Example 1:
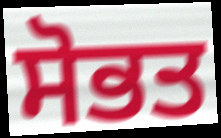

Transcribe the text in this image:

ਸੋਭਤ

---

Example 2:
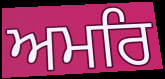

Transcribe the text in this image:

ਅਮਰਿ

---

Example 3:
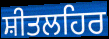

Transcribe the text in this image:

ਸ਼ੀਤਲਹਿਰ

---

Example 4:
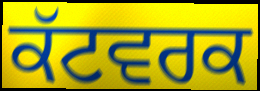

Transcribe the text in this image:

ਕੱਟਵਰਕ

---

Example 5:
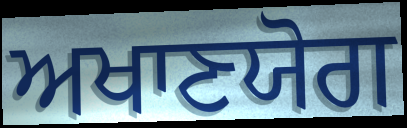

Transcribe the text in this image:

ਅਖਾਣਯੋਗ